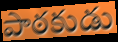
పాఠకుడు